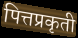
पित्तप्रकृती